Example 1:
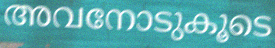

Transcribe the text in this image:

അവനോടുകൂടെ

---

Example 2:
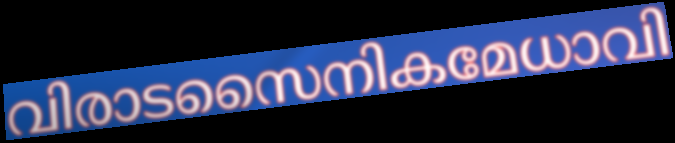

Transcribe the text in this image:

വിരാടസൈനികമേധാവി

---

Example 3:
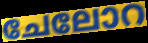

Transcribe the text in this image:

ചേലോറ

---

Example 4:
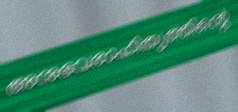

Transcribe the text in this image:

അനുഭവരാഹിത്യത്തിന്റെ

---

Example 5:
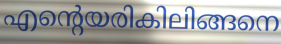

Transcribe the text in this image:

എന്റെയരികിലിങ്ങനെ